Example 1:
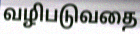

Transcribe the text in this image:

வழிபடுவதை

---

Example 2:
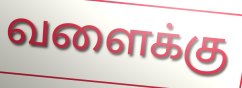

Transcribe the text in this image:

வளைக்கு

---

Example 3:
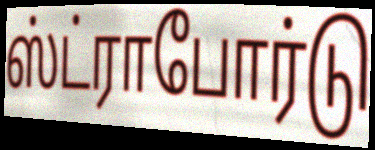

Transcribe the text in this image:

ஸ்ட்ராபோர்டு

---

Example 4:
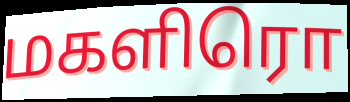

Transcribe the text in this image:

மகளிரொ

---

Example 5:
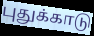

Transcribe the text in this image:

புதுக்காடு